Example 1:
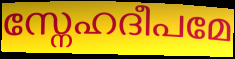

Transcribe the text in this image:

സ്നേഹദീപമേ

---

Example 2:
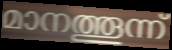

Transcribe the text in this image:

മാനത്തൂന്ന്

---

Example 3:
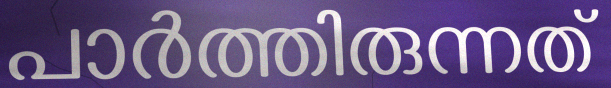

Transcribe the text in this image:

പാർത്തിരുന്നത്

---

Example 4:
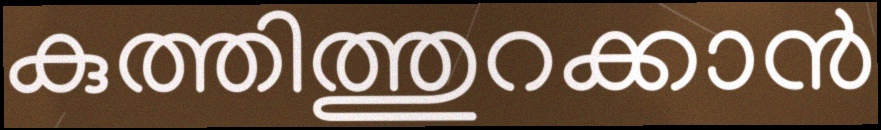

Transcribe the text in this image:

കുത്തിത്തുറക്കാൻ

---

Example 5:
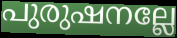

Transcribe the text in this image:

പുരുഷനല്ലേ